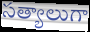
సత్యాలుగా